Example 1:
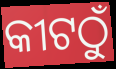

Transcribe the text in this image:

କୀଟଠୁଁ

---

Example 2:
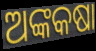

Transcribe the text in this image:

ଅଙ୍କକଷା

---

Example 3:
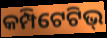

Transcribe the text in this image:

କମ୍ପିଟେଟିଭ୍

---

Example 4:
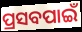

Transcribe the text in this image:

ପ୍ରସବପାଇଁ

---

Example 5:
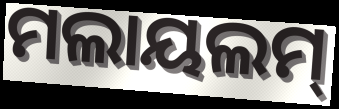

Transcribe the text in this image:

ମଲାୟଲମ୍